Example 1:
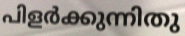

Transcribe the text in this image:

പിളർക്കുന്നിതു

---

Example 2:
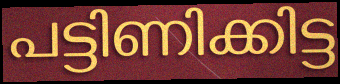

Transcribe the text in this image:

പട്ടിണിക്കിട്ട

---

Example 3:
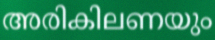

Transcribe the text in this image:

അരികിലണയും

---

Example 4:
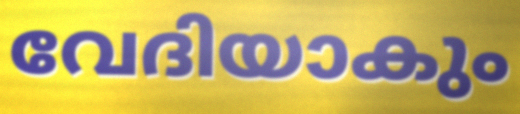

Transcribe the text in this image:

വേദിയാകും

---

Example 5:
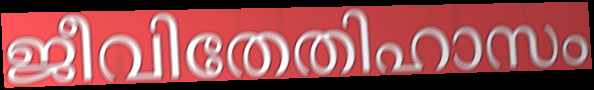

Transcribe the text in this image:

ജീവിതേതിഹാസം